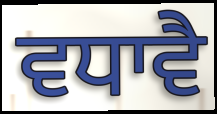
ਵਧਾਵੈ